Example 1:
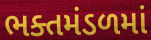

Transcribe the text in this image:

ભક્તમંડળમાં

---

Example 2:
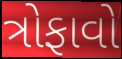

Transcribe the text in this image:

ત્રોફાવો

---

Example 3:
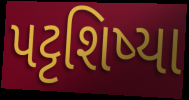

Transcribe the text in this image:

પટ્ટશિષ્યા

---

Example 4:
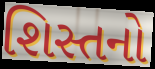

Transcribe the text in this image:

શિસ્તનો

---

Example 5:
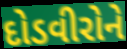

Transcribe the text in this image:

દોડવીરોને